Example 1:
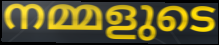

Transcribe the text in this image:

നമ്മളുടെ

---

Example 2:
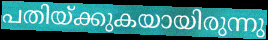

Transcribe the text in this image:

പതിയ്ക്കുകയായിരുന്നു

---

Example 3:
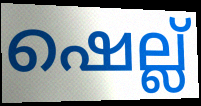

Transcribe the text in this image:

ഷെല്ല്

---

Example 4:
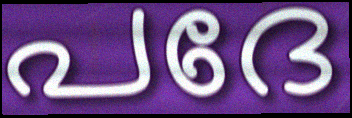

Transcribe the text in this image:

പദേ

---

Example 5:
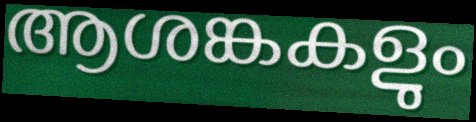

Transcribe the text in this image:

ആശങ്കകളും